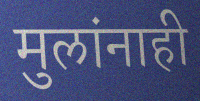
मुलांनाही